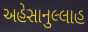
અહેસાનુલ્લાહ